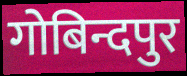
गोबिन्दपुर